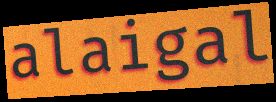
alaigal